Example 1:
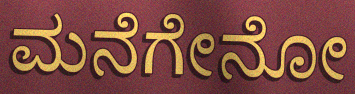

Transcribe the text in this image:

ಮನೆಗೇನೋ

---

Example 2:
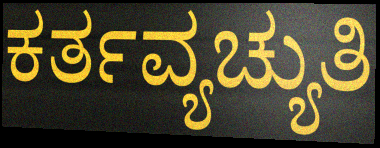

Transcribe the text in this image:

ಕರ್ತವ್ಯಚ್ಯುತಿ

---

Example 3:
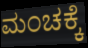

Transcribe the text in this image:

ಮಂಚಕ್ಕೆ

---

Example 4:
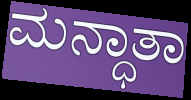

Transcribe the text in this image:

ಮನ್ಧಾತಾ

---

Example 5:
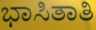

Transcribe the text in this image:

ಭಾಸಿತಾತಿ